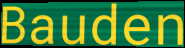
Bauden